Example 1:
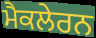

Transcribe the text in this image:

ਮੈਕਲੇਰਨ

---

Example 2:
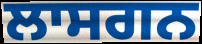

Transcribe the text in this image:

ਲਾਸਗਨ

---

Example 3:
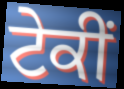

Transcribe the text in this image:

ਟੇਕੀਂ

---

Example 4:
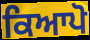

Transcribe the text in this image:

ਕਿਆਪੋ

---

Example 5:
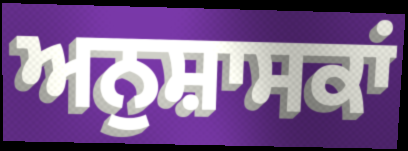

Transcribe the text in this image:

ਅਨੁਸ਼ਾਸਕਾਂ